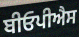
ਬੀਓਪੀਐਸ